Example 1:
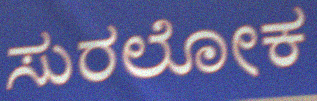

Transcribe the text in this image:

ಸುರಲೋಕ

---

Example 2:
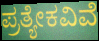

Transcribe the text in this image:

ಪ್ರತ್ಯೇಕವಿವೆ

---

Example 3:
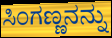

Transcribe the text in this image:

ಸಿಂಗಣ್ಣನನ್ನು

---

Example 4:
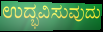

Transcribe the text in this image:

ಉದ್ಭವಿಸುವುದು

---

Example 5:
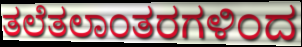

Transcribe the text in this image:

ತಲೆತಲಾಂತರಗಳಿಂದ